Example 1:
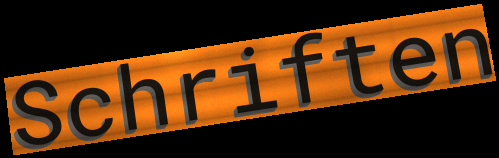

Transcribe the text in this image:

Schriften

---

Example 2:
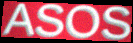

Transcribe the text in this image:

ASOS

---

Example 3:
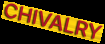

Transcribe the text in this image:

CHIVALRY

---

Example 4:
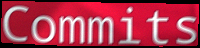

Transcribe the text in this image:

Commits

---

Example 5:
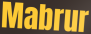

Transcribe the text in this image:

Mabrur